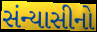
સંન્યાસીનો